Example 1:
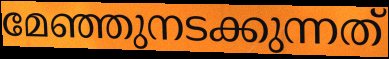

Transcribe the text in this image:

മേഞ്ഞുനടക്കുന്നത്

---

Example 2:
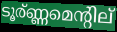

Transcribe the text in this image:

ടൂര്ണ്ണമെന്റില്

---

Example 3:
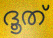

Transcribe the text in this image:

ദൂത്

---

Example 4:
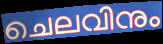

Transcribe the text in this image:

ചെലവിനും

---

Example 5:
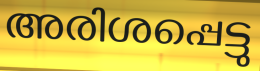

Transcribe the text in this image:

അരിശപ്പെട്ടു